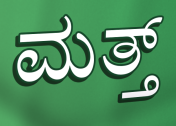
ಮತ್ತ್